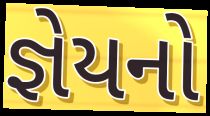
જ્ઞેયનો